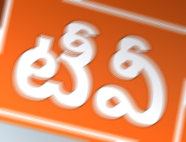
టీవీ